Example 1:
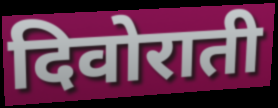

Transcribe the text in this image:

दिवोराती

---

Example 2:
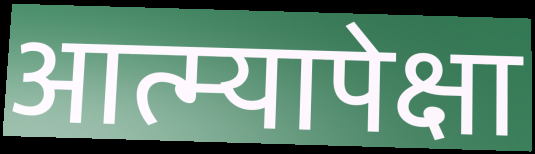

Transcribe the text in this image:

आत्म्यापेक्षा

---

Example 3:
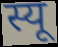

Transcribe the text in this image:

स्यू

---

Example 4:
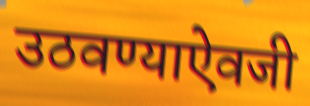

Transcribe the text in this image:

उठवण्याऐवजी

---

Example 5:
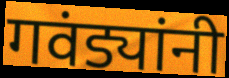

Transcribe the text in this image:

गवंड्यांनी